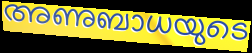
അണുബാധയുടെ